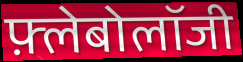
फ़्लेबोलॉजी